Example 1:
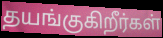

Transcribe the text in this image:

தயங்குகிறீர்கள்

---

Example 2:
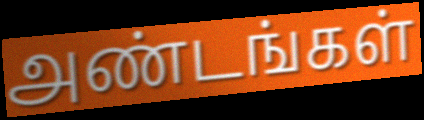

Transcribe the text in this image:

அண்டங்கள்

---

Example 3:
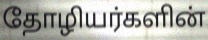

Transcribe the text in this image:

தோழியர்களின்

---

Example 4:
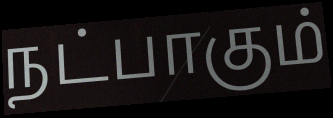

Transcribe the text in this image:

நட்பாகும்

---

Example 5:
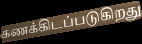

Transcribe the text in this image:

கணக்கிடப்படுகிறது